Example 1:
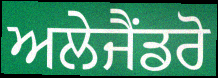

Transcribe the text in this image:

ਅਲੇਜੈਂਡਰੋ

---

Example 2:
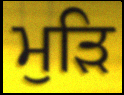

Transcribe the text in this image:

ਮੁੜਿ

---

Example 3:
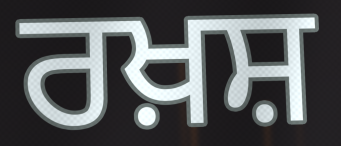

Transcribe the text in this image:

ਰਖ਼ਸ਼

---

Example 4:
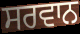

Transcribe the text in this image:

ਸਰਵਾਨ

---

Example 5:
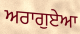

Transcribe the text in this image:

ਅਰਾਗੁਏਆ